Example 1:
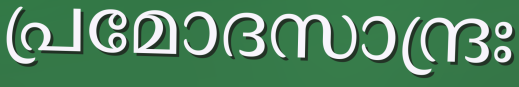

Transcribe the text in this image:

പ്രമോദസാന്ദ്രഃ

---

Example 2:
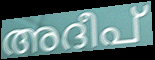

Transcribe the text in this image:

അദീപ്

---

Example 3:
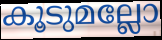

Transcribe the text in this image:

കൂടുമല്ലോ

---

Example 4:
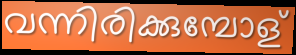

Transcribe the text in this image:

വന്നിരിക്കുമ്പോള്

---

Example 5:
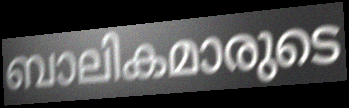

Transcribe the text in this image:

ബാലികമാരുടെ